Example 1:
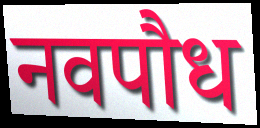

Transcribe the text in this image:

नवपौध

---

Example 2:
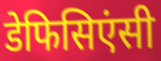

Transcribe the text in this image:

डेफिसिएंसी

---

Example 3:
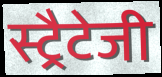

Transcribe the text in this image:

स्ट्रैटेजी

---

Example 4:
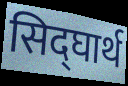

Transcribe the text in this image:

सिद्घार्थ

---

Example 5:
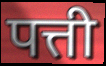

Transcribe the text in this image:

पत्ती